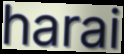
harai